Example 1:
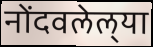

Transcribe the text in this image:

नोंदवलेल्या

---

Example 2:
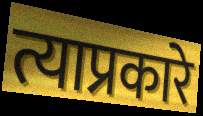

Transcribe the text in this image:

त्याप्रकारे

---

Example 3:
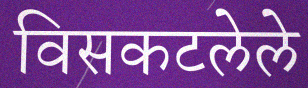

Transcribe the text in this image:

विसकटलेले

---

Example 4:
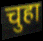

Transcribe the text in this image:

चुहा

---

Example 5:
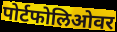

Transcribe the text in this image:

पोर्टफोलिओवर